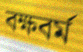
বক্ষবর্ম